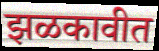
झळकावीत